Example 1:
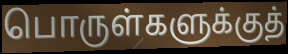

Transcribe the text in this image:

பொருள்களுக்குத்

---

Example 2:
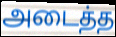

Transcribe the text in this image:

அடைத்த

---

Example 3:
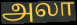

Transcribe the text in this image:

அலா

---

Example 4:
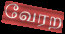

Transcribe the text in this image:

வேரற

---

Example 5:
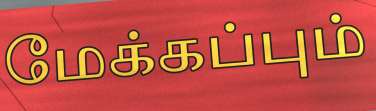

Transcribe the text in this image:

மேக்கப்பும்